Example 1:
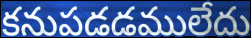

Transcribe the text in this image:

కనుపడడములేదు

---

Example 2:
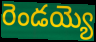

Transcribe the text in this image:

రెండయ్యె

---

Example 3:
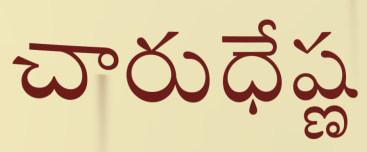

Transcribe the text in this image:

చారుధేష్ణ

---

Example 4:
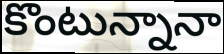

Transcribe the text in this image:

కొంటున్నానా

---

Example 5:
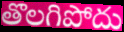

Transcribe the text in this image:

తొలగిపోదు